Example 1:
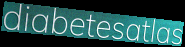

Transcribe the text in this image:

diabetesatlas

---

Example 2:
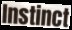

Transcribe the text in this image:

lnstinct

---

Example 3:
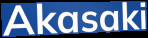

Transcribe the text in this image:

Akasaki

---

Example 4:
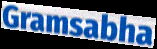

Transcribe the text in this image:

Gramsabha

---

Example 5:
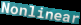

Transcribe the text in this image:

Nonlinear